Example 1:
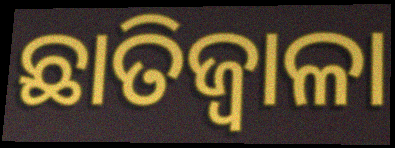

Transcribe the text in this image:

ଛାତିଜ୍ୱାଳା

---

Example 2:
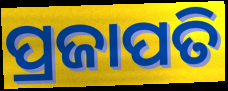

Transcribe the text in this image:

ପ୍ରଜାପତି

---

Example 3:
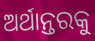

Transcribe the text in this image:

ଅର୍ଥାନ୍ତରକୁ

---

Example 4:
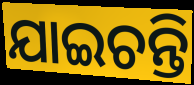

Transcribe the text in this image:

ଯାଇଚନ୍ତି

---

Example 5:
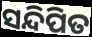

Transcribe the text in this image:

ସନ୍ଦିପିତ